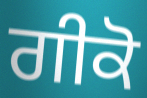
ਗੀਕੋ